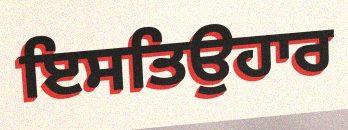
ਇਸਤਿਉਹਾਰ